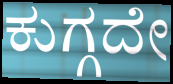
ಕುಗ್ಗದೇ